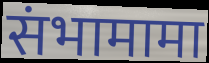
संभामामा